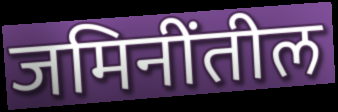
जमिनींतील